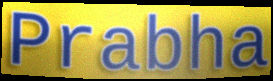
Prabha